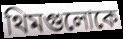
থিমগুলোকে